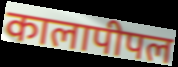
कालापीपल